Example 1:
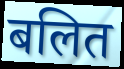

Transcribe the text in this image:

बलित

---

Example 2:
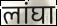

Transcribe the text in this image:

लांघा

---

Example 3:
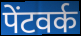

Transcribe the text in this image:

पेंटवर्क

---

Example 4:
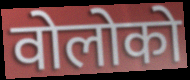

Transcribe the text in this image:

वोलोको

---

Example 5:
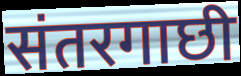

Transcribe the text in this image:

संतरगाछी